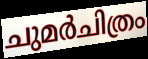
ചുമർചിത്രം